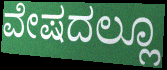
ವೇಷದಲ್ಲೂ